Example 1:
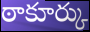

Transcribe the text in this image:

ఠాకూర్కు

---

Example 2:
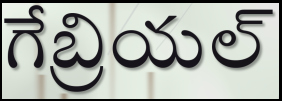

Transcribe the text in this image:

గేబ్రియల్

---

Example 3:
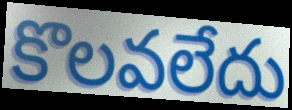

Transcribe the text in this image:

కొలవలేదు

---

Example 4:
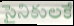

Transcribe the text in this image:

సైనికులకే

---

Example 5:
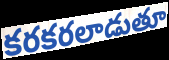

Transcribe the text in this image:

కరకరలాడుతూ